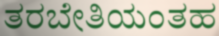
ತರಬೇತಿಯಂತಹ